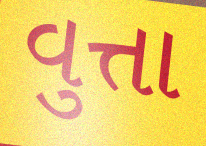
વુત્તા